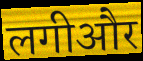
लगीऔर